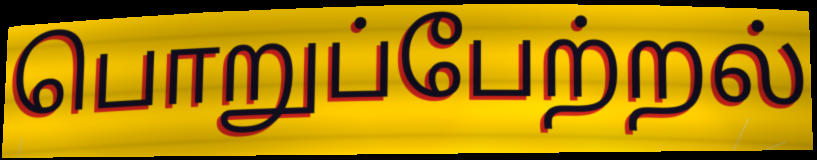
பொறுப்பேற்றல்